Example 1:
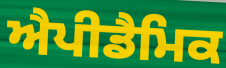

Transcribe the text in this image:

ਐਪੀਡੈਮਿਕ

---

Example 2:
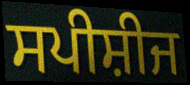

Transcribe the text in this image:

ਸਪੀਸ਼ੀਜ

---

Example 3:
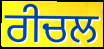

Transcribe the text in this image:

ਰੀਚਲ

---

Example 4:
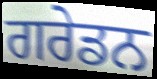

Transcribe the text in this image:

ਗਰੇਡਨ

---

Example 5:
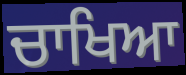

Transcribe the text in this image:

ਚਾਖਿਆ